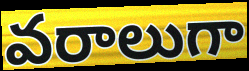
వరాలుగా